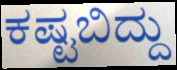
ಕಷ್ಟಬಿದ್ದು